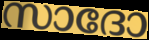
സാദോ